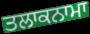
ਤਲਾਕਨਾਮਾ